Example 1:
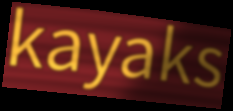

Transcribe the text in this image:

kayaks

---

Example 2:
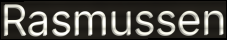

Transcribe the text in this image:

Rasmussen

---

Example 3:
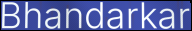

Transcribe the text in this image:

Bhandarkar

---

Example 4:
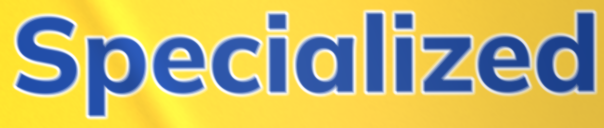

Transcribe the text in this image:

Specialized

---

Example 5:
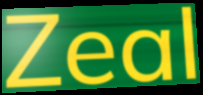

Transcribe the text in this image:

Zeal